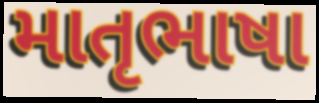
માતૃભાષા